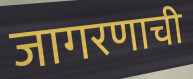
जागरणाची